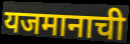
यजमानाची